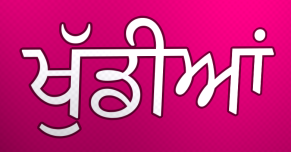
ਖੁੱਡੀਆਂ